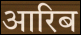
आरिब